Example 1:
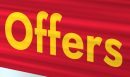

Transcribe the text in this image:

Offers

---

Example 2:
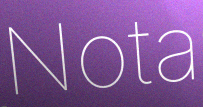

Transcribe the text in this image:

Nota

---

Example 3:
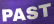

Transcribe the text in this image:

PAST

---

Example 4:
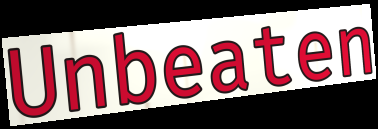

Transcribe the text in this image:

Unbeaten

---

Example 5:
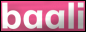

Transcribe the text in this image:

baali